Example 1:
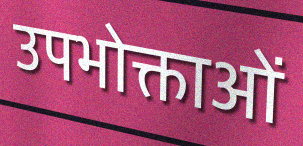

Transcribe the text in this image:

उपभोक्ताओं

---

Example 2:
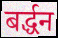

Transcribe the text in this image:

बर्द्धन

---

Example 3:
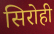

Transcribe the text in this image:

सिरोही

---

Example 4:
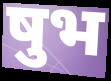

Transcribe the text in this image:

षुभ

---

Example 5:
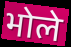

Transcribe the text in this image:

भोले